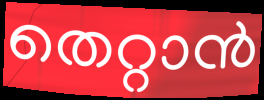
തെറ്റാൻ